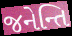
જનેન્તિ